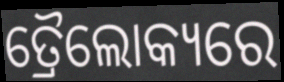
ତ୍ରୈଲୋକ୍ୟରେ